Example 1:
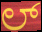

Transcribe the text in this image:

ಲ್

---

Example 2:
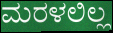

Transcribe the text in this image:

ಮರಳಲಿಲ್ಲ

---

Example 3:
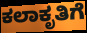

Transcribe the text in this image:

ಕಲಾಕೃತಿಗೆ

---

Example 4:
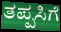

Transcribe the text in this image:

ತಪ್ಪಸಿಗೆ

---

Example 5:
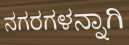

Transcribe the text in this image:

ನಗರಗಳನ್ನಾಗಿ